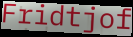
Fridtjof